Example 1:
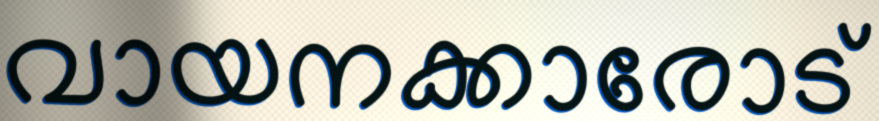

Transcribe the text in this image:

വായനക്കാരോട്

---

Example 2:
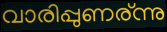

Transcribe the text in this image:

വാരിപ്പുണര്ന്നു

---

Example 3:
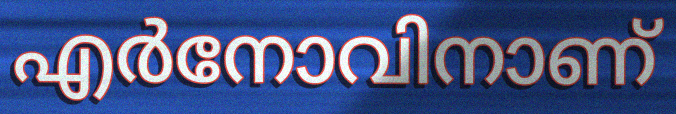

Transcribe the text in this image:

എർനോവിനാണ്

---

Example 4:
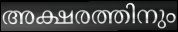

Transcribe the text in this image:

അക്ഷരത്തിനും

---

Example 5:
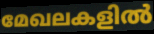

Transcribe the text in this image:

മേഖലകളിൽ